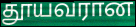
தூயவரான